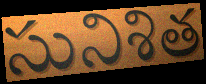
సునిశిత